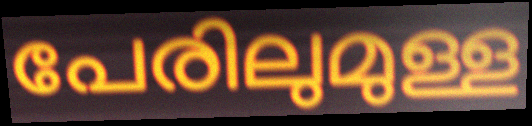
പേരിലുമുള്ള